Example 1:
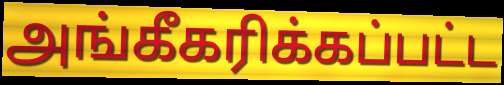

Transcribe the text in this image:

அங்கீகரிக்கப்பட்ட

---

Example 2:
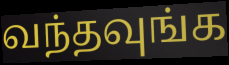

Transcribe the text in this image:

வந்தவுங்க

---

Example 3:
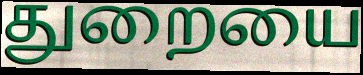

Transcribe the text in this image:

துறையை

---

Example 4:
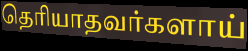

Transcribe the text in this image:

தெரியாதவர்களாய்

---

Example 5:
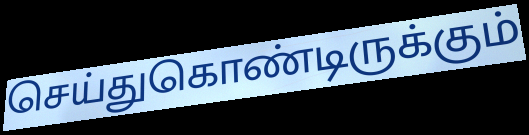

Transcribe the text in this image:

செய்துகொண்டிருக்கும்